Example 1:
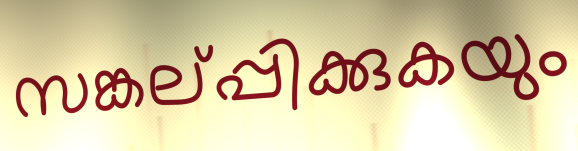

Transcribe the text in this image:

സങ്കല്പ്പിക്കുകയും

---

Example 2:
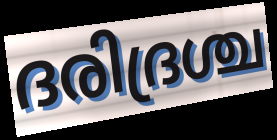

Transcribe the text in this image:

ദരിദ്രശ്ച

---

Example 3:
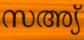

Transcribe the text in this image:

സഅ്യ്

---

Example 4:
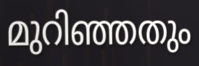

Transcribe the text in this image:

മുറിഞ്ഞതും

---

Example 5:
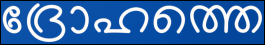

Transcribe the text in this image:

ദ്രോഹത്തെ